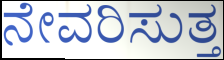
ನೇವರಿಸುತ್ತ